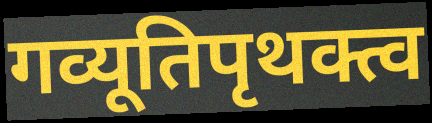
गव्यूतिपृथक्त्व